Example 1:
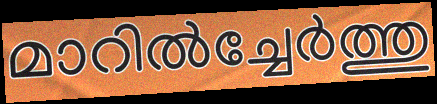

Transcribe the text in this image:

മാറിൽച്ചേർത്തു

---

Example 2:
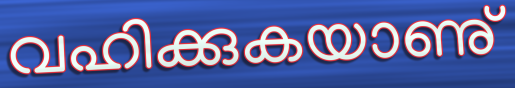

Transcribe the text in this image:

വഹിക്കുകയാണു്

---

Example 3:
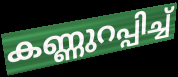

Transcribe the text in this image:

കണ്ണുറപ്പിച്ച്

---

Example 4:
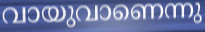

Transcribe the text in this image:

വായുവാണെന്നു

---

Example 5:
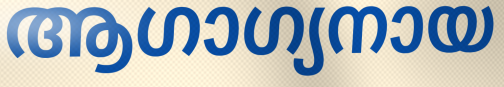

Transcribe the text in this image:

ആഗാഗ്യനായ